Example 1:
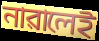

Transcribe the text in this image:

নাৱালেই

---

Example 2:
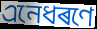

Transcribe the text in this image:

এনেধৰণে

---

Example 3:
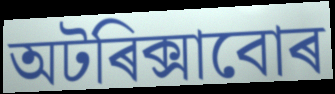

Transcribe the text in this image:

অটৰিক্সাবোৰ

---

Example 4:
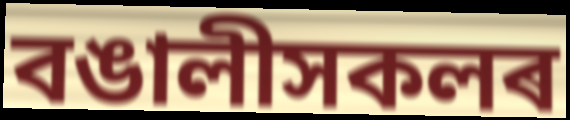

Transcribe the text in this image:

বঙালীসকলৰ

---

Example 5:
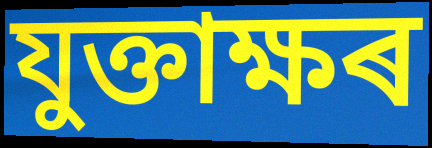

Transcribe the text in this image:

যুক্তাক্ষৰ